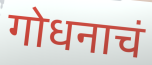
गोधनाचं